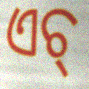
ଏଚ୍